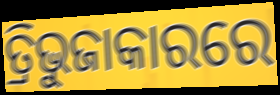
ତ୍ରିଭୁଜାକାରରେ